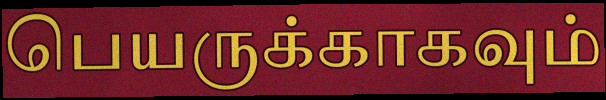
பெயருக்காகவும்